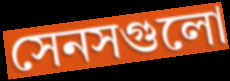
সেনসগুলো